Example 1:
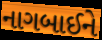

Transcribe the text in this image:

નાગબાઈને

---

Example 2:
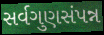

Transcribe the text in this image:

સર્વગુણસંપન્ન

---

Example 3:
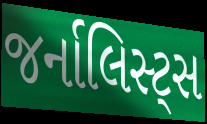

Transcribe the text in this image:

જર્નાલિસ્ટ્સ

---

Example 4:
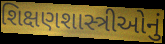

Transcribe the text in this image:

શિક્ષણશાસ્ત્રીઓનું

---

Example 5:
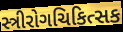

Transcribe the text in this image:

સ્ત્રીરોગચિકિત્સક